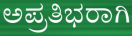
ಅಪ್ರತಿಭರಾಗಿ